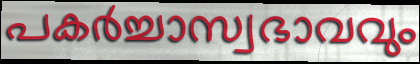
പകർച്ചാസ്വഭാവവും